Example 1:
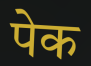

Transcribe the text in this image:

पेक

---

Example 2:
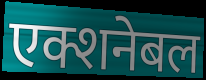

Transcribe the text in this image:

एक्शनेबल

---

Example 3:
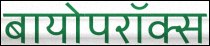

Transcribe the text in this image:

बायोपरॉक्स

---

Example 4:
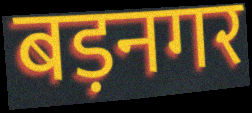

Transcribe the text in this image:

बड़नगर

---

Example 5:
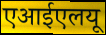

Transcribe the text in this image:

एआईएलयू